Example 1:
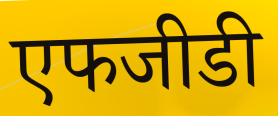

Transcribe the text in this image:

एफजीडी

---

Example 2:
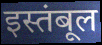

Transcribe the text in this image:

इस्तंबूल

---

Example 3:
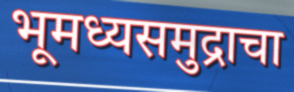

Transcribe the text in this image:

भूमध्यसमुद्राचा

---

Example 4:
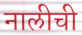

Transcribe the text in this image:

नालीची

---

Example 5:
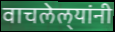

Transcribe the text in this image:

वाचलेल्यांनी